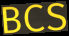
BCS